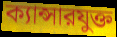
ক্যান্সারযুক্ত